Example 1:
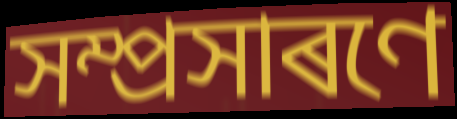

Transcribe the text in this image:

সম্প্ৰসাৰণে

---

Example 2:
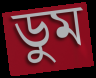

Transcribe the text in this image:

ডুম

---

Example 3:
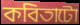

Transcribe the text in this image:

কবিতাটো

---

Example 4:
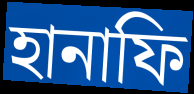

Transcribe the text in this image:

হানাফি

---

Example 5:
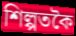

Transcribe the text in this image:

শিল্পতকৈ